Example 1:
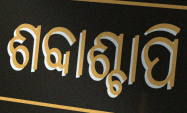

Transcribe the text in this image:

ଶବ୍ଦାଶ୍ଚାପି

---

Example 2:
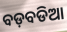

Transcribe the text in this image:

ବଡ଼ବଡିଆ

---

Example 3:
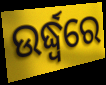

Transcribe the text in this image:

ଉର୍ଦ୍ଧ୍ଵରେ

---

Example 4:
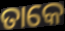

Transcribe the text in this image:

ତାକେ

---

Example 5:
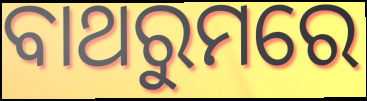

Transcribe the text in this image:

ବାଥରୁମରେ